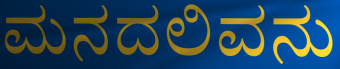
ಮನದಲಿವನು